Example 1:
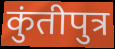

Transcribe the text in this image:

कुंतीपुत्र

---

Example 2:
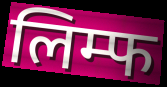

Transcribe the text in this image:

लिम्फ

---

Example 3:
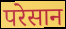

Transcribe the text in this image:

परेसान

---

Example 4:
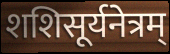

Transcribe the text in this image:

शशिसूर्यनेत्रम्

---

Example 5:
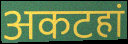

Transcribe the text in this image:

अकटहां